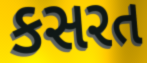
કસરત